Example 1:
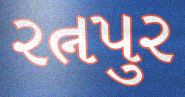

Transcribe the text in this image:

રત્નપુર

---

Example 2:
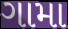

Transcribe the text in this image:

ગામા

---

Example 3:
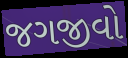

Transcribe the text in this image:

જગજીવો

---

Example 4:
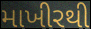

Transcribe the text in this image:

માખીરથી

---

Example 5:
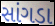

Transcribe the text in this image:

સાંગડા